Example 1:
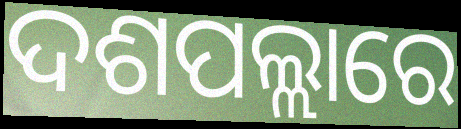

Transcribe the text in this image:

ଦଶପଲ୍ଲାରେ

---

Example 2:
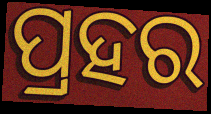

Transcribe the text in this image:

ପ୍ରହର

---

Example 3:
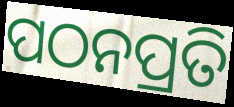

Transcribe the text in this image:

ପଠନପ୍ରତି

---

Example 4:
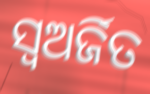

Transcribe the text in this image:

ସ୍ୱଅର୍ଜିତ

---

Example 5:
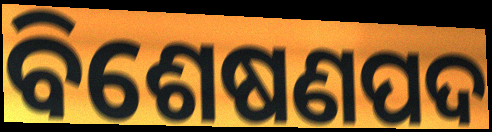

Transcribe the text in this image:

ବିଶେଷଣପଦ